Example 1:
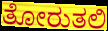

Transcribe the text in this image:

ತೋರುತಲಿ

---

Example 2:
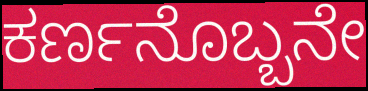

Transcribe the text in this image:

ಕರ್ಣನೊಬ್ಬನೇ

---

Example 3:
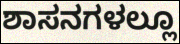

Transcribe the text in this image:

ಶಾಸನಗಳಲ್ಲೂ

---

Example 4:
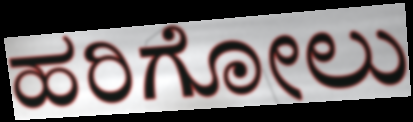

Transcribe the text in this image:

ಹರಿಗೋಲು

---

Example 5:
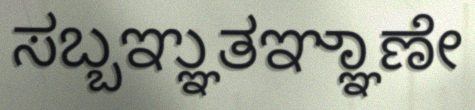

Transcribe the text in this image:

ಸಬ್ಬಞ್ಞುತಞ್ಞಾಣೇ